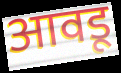
आवडू